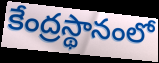
కేంద్రస్థానంలో